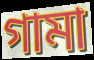
গামা